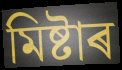
মিষ্টাৰ